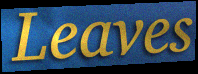
Leaves